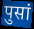
पुसां